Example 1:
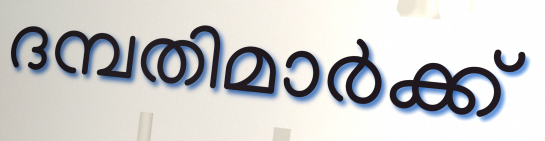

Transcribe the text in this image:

ദമ്പതിമാർക്ക്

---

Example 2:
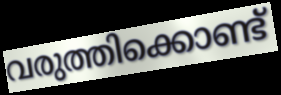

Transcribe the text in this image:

വരുത്തിക്കൊണ്ട്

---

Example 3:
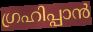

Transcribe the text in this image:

ഗ്രഹിപ്പാൻ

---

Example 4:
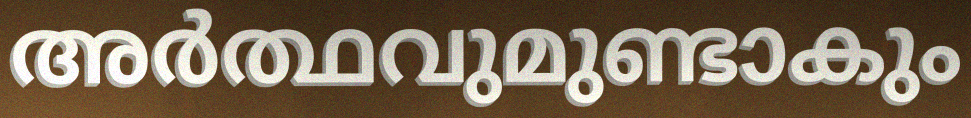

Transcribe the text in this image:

അർത്ഥവുമുണ്ടാകും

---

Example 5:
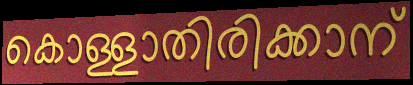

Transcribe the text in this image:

കൊള്ളാതിരിക്കാന്